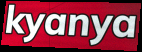
kyanya